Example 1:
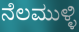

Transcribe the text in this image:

ನೆಲಮುಳ್ಳಿ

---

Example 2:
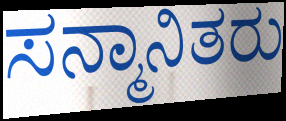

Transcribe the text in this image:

ಸನ್ಮಾನಿತರು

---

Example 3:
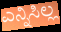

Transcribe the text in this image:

ಎನ್ನಿಸಿಲ್ಲ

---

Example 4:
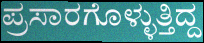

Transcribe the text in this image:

ಪ್ರಸಾರಗೊಳ್ಳುತ್ತಿದ್ದ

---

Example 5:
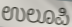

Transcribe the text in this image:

ಉಲೂಪಿ